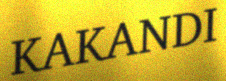
KAKANDI